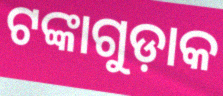
ଟଙ୍କାଗୁଡ଼ାକ